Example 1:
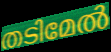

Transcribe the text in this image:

തടിമേൽ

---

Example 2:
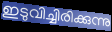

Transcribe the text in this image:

ഇടുവിച്ചിരിക്കുന്നു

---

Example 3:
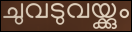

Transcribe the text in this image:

ചുവടുവയ്ക്കും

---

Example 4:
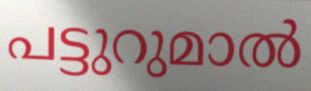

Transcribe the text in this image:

പട്ടുറുമാൽ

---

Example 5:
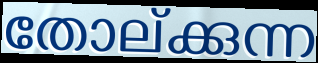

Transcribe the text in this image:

തോല്ക്കുന്ന